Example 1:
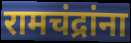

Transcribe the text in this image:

रामचंद्रांना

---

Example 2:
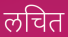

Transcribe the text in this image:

लचित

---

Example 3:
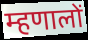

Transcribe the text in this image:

म्हणालों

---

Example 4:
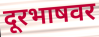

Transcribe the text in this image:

दूरभाषवर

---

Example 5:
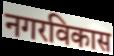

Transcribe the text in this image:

नगरविकास